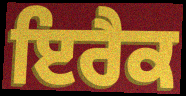
ਇਰੈਕ